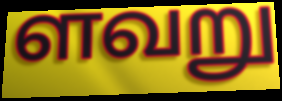
ளவறு